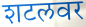
शटलवर